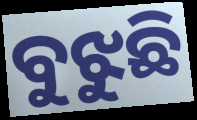
ବୁଝୁଛି